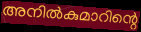
അനിൽകുമാറിന്റെ